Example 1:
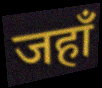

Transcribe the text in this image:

जहाँ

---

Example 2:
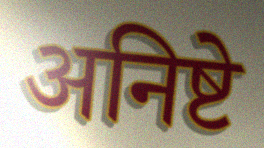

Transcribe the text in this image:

अनिष्टे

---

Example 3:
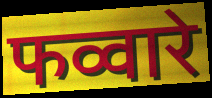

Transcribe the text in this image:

फव्वारे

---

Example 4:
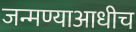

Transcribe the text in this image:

जन्मण्याआधीच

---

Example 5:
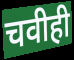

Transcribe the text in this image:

चवीही